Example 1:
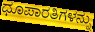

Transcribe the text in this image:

ಧೂಪಾರತಿಗಳನ್ನು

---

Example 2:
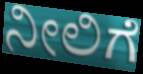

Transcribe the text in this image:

ನೀಲಿಗೆ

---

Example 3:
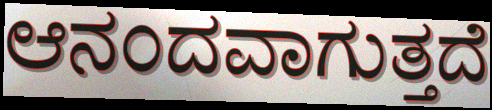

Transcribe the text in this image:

ಆನಂದವಾಗುತ್ತದೆ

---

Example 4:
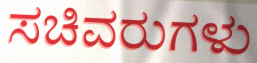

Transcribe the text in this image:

ಸಚಿವರುಗಳು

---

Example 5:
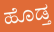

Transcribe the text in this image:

ಹೊಡ್ತ